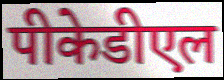
पीकेडीएल